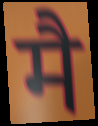
मै